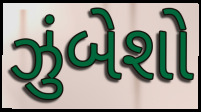
ઝુંબેશો